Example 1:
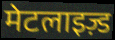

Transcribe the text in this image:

मेटलाइज़्ड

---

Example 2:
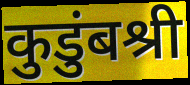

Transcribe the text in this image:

कुडुंबश्री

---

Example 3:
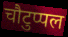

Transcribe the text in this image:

चौटुप्पल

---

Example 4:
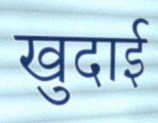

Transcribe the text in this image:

खुदाई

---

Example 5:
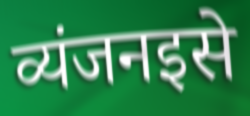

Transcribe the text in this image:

व्यंजनइसे